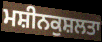
ਮਸ਼ੀਨਕੁਸ਼ਲਤਾ